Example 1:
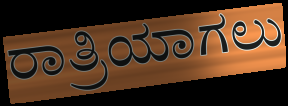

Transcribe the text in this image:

ರಾತ್ರಿಯಾಗಲು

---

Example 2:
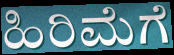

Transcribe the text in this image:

ಹಿರಿಮೆಗೆ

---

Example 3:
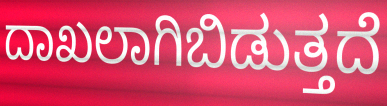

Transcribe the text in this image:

ದಾಖಲಾಗಿಬಿಡುತ್ತದೆ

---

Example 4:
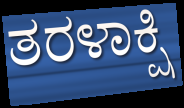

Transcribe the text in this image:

ತರಳಾಕ್ಷಿ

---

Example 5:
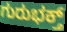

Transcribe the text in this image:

ಗುರುಭಕ್ತ್